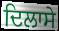
ਦਿਲਾਸੇ